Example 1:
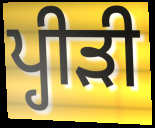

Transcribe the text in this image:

ਪ੍ਹੀੜੀ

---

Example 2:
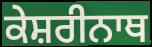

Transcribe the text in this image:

ਕੇਸ਼ਰੀਨਾਥ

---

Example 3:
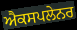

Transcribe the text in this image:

ਐਕਸਪਲੇਨਰ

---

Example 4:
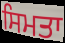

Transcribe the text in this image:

ਸਿਮਤਾ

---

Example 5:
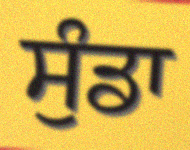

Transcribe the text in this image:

ਸੁੰਡਾ